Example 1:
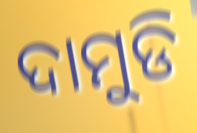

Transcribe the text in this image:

ଦାମୁଡି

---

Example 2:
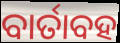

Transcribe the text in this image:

ବାର୍ତାବହ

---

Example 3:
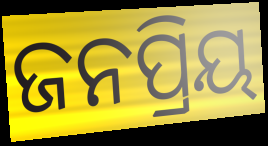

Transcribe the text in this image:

ଜନପ୍ରିୟ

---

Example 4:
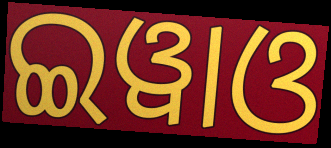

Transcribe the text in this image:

ଇୱାଓ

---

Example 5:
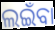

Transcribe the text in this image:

ଲଇଁବା